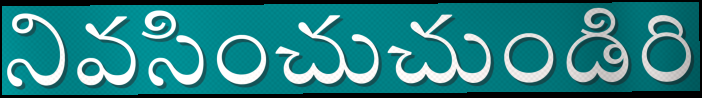
నివసించుచుండిరి